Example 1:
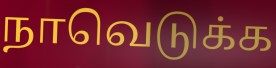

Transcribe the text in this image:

நாவெடுக்க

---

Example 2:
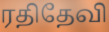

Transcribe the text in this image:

ரதிதேவி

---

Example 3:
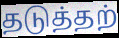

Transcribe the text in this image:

தடுத்தற்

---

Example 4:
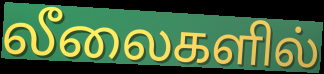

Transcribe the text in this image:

லீலைகளில்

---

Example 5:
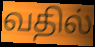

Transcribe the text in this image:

வதில்